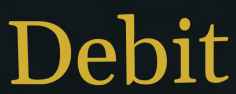
Debit